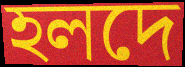
হলদে